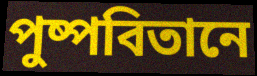
পুষ্পবিতানে